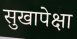
सुखापेक्षा